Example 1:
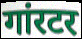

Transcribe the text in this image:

गांरटर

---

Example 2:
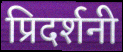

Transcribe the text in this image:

प्रिदर्शनी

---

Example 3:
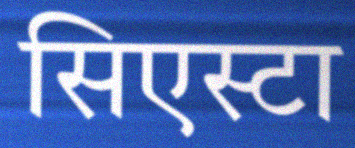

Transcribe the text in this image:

सिएस्टा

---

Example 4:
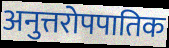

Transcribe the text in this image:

अनुत्तरोपपातिक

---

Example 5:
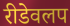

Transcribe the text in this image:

रीडेवलप